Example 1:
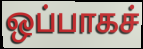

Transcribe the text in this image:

ஒப்பாகச்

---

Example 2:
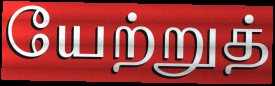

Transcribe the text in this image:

யேற்றுத்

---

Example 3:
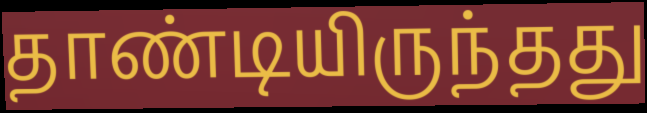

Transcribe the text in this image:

தாண்டியிருந்தது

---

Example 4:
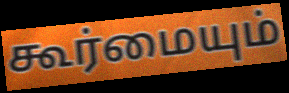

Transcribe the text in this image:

கூர்மையும்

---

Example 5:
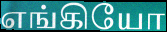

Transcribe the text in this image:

எங்கியோ